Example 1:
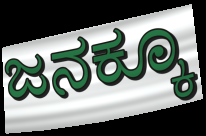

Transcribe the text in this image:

ಜನಕ್ಕೂ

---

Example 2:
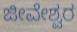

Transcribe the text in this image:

ಜೀವೇಶ್ವರ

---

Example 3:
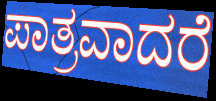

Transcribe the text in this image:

ಪಾತ್ರವಾದರೆ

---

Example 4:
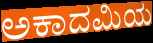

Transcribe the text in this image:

ಅಕಾದಮಿಯ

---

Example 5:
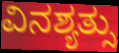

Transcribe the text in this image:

ವಿನಶ್ಯತ್ಸು